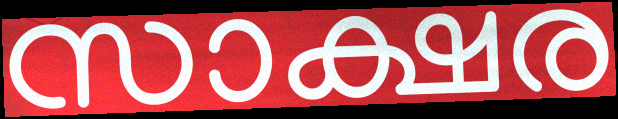
സാക്ഷര